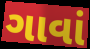
ગાવાં